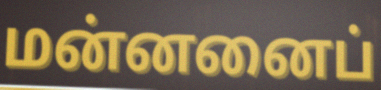
மன்னனைப்